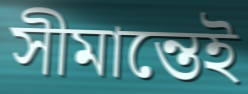
সীমান্তেই